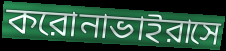
করোনাভাইরাসে